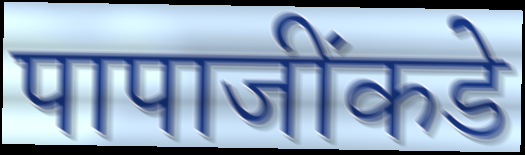
पापाजींकडे